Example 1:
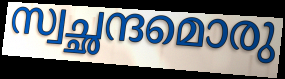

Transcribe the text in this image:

സ്വച്ഛന്ദമൊരു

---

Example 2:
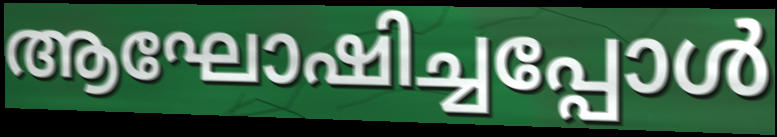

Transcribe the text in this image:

ആഘോഷിച്ചപ്പോൾ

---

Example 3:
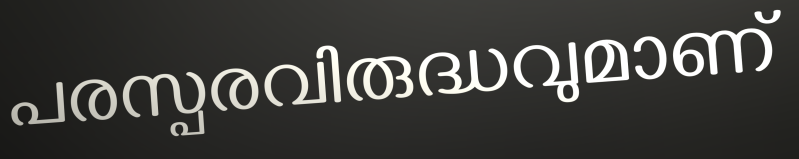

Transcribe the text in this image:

പരസ്പരവിരുദ്ധവുമാണ്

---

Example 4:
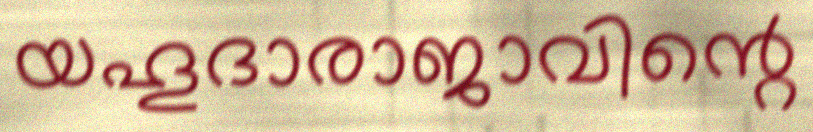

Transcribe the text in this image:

യഹൂദാരാജാവിന്റെ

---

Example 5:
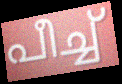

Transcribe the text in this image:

പീച്ച്